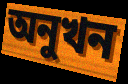
অনুখন